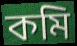
কমি